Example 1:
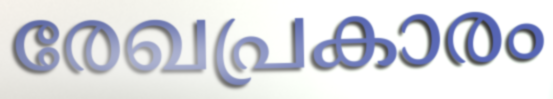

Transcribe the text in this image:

രേഖപ്രകാരം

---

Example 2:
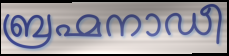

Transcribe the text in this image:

ബ്രഹ്മനാഡീ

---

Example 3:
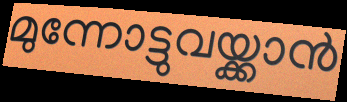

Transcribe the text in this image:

മുന്നോട്ടുവയ്ക്കാൻ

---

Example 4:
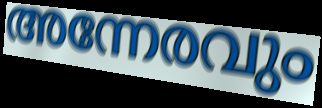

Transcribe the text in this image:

അന്നേരവും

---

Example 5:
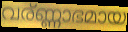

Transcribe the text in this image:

വര്ണ്ണാഭമായ